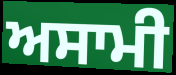
ਅਸਾਮੀ